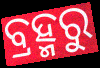
ବ୍ରହ୍ମରୁ